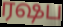
ரஷப